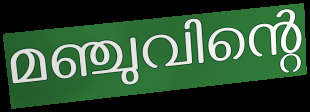
മഞ്ചുവിന്റെ